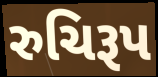
રુચિરૂપ